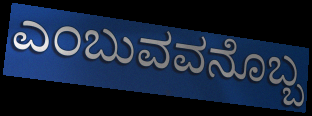
ಎಂಬುವವನೊಬ್ಬ